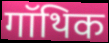
गॉथिक